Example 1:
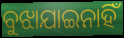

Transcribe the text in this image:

ବୁଝାଯାଇନାହିଁ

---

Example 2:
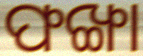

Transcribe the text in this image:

ଫଙ୍ଖା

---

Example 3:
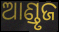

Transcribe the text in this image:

ଆଣ୍ଡୃଜ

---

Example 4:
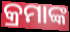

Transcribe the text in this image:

କ୍ରମାଙ୍କ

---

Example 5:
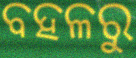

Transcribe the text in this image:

ବହଳରୁ